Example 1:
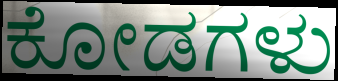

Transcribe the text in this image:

ಕೋಡಗಳು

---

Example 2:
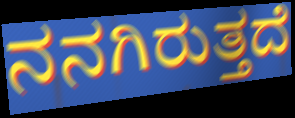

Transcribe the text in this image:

ನನಗಿರುತ್ತದೆ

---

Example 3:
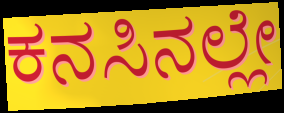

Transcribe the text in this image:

ಕನಸಿನಲ್ಲೇ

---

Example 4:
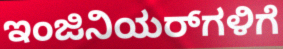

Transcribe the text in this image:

ಇಂಜಿನಿಯರ್‌ಗಳಿಗೆ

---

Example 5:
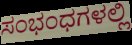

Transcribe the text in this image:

ಸಂಭಂಧಗಳಲ್ಲಿ